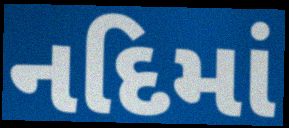
નદિમાં